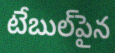
టేబుల్‌పైన